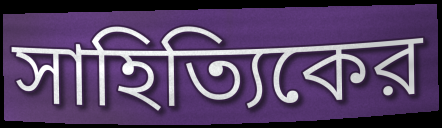
সাহিত্যিকের